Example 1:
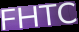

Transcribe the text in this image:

FHTC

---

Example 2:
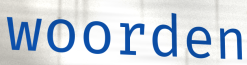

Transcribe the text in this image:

woorden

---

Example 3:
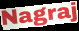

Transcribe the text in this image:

Nagraj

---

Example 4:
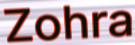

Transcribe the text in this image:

Zohra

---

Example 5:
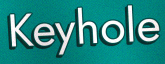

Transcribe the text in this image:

Keyhole